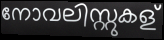
നോവലിസ്റ്റുകള്